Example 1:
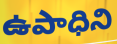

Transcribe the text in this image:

ఉపాధిని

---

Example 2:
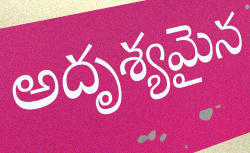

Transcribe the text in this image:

అదృశ్యమైన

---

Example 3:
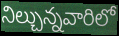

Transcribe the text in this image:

నిల్చున్నవారిలో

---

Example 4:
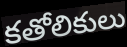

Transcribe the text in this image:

కతోలికులు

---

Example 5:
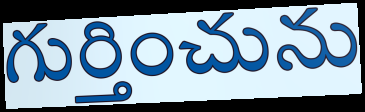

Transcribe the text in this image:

గుర్తించును